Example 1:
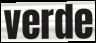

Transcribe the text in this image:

verde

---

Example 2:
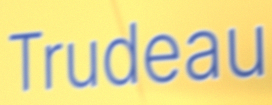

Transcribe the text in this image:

Trudeau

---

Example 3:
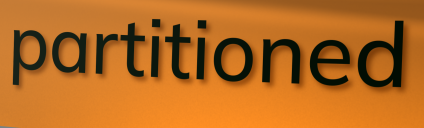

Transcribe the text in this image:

partitioned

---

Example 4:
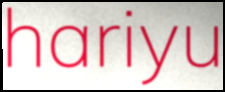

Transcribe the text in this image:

hariyu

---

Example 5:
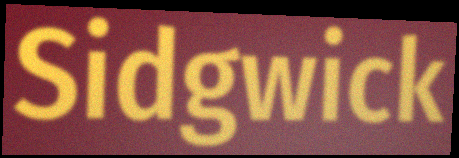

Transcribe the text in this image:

Sidgwick